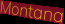
Montana